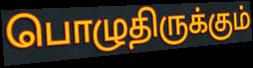
பொழுதிருக்கும்